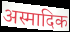
अस्मादिक